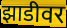
झाडीवर